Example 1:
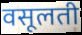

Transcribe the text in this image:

वसूलती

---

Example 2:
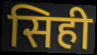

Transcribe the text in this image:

सिही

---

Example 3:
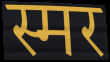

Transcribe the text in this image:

स्मर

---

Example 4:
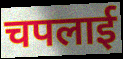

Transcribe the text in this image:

चपलाई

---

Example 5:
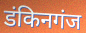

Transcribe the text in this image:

डंकिनगंज